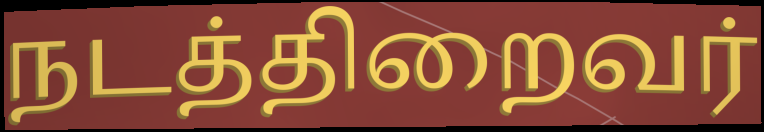
நடத்திறைவர்